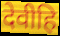
देवीहि